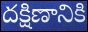
దక్షిణానికి